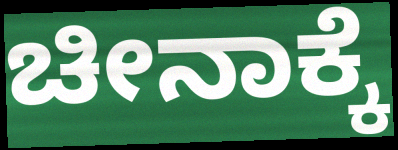
ಚೀನಾಕ್ಕೆ